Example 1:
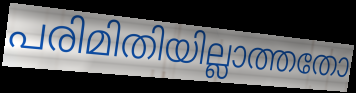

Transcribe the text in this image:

പരിമിതിയില്ലാത്തതോ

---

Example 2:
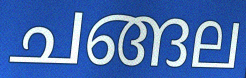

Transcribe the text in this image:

ചങ്ങല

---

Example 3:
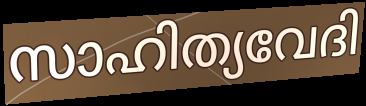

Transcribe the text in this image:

സാഹിത്യവേദി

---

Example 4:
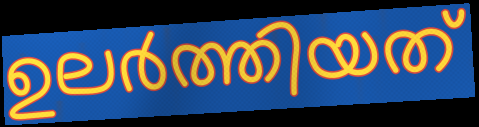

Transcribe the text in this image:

ഉലർത്തിയത്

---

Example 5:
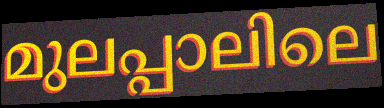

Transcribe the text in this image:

മുലപ്പാലിലെ